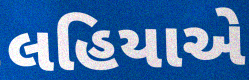
લહિયાએ